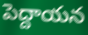
పెద్దాయన